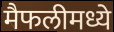
मैफलीमध्ये